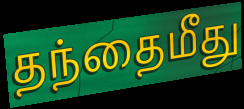
தந்தைமீது